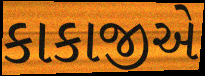
કાકાજીએ